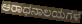
ಆರಾಧನಾಲಯಗಳ